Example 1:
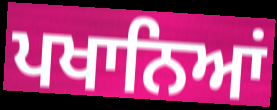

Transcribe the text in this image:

ਪਖਾਨਿਆਂ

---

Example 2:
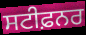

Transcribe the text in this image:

ਸਟੀਫ਼ਨਰ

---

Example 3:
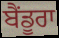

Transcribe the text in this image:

ਬੈਂਡੂਰਾ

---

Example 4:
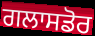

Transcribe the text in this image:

ਗਲਾਸਡੋਰ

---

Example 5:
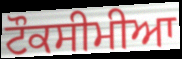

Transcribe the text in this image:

ਟੌਕਸੀਮੀਆ